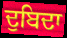
ਦੁਬਿਦਾ